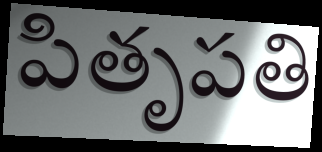
పితృపతి